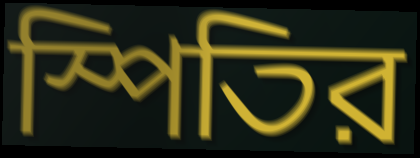
স্পিতির